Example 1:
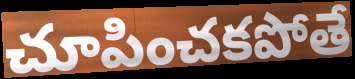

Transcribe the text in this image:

చూపించకపోతే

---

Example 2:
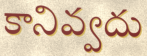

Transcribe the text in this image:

కానివ్వదు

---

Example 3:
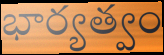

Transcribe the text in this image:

భార్యత్వం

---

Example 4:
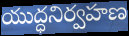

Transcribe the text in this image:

యుద్ధనిర్వహణ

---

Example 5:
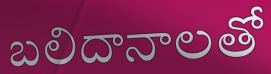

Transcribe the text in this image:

బలిదానాలతో